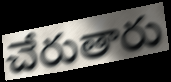
చేరుతారు